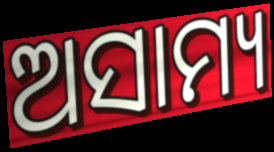
ଅସାମ୍ୟ